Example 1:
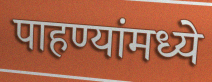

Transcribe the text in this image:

पाहण्यांमध्ये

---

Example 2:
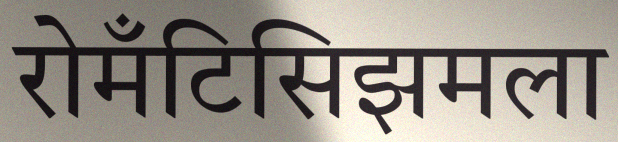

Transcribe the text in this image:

रोमँटिसिझमला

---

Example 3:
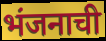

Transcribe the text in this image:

भंजनाची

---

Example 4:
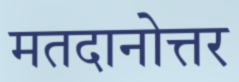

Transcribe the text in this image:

मतदानोत्तर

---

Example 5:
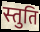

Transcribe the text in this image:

स्तुति